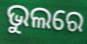
ଭୁଲରେ